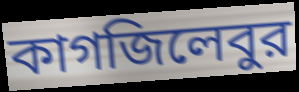
কাগজিলেবুর